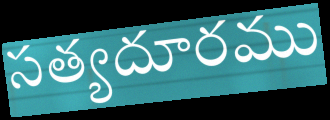
సత్యదూరము